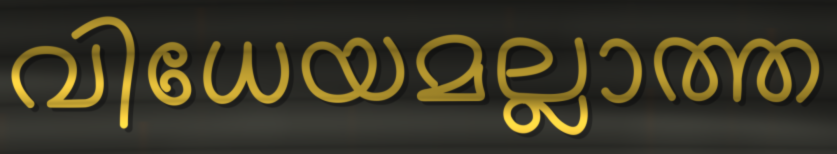
വിധേയമല്ലാത്ത